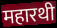
महारथी